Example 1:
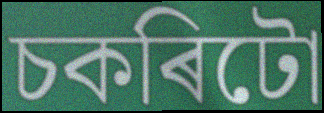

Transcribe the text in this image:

চকৰিটো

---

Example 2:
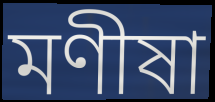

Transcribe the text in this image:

মণীষা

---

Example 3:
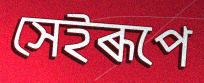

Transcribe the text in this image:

সেইৰূপে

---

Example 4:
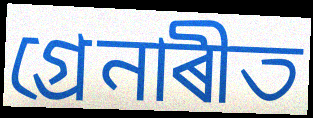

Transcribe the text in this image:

গ্ৰেনাৰীত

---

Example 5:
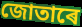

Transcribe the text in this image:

জোতাৰে